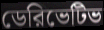
ডেরিভেটিভ